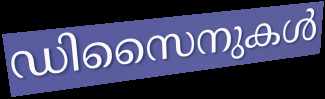
ഡിസൈനുകൾ